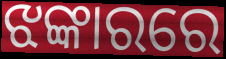
ଝଙ୍କାରରେ